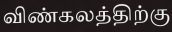
விண்கலத்திற்கு